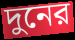
দুনের